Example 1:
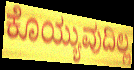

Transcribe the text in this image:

ಕೊಯ್ಯುವುದಿಲ್ಲ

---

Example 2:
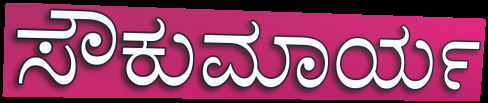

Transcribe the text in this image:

ಸೌಕುಮಾರ್ಯ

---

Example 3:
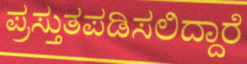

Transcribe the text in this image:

ಪ್ರಸ್ತುತಪಡಿಸಲಿದ್ದಾರೆ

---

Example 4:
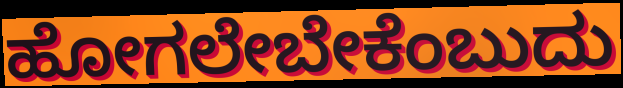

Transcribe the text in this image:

ಹೋಗಲೇಬೇಕೆಂಬುದು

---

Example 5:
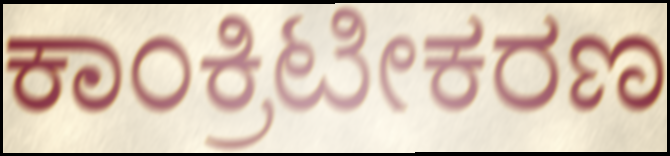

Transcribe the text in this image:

ಕಾಂಕ್ರಿಟೀಕರಣ